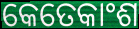
କେତେକାଂଶ